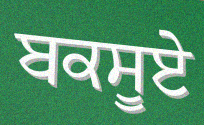
ਬਕਸੂਏ